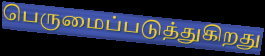
பெருமைப்படுத்துகிறது